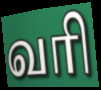
வரி